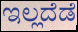
ಇಲ್ಲದೆಡೆ